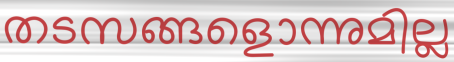
തടസങ്ങളൊന്നുമില്ല